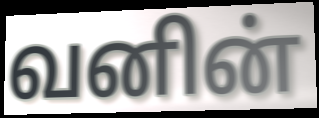
வனின்